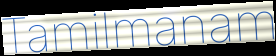
Tamilmanam